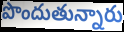
పొందుతున్నారు